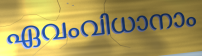
ഏവംവിധാനാം